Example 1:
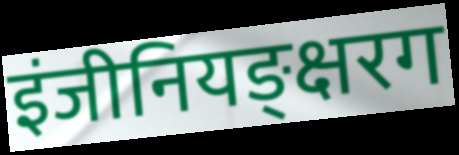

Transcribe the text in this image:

इंजीनियङ्क्षरग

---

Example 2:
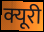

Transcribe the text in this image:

क्यूरी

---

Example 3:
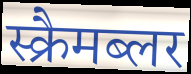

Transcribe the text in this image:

स्क्रैमब्लर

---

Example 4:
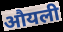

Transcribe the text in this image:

औयली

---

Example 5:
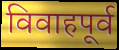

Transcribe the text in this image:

विवाहपूर्व